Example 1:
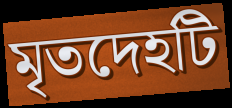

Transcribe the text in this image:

মৃতদেহটি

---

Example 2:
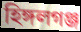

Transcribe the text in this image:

হিঙ্গলগঞ্জ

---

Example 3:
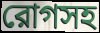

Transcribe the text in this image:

রোগসহ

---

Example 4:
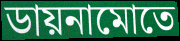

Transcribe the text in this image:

ডায়নামোতে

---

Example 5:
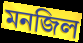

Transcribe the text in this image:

মনজিল